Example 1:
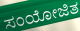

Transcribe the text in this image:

ಸಂಯೋಜಿತ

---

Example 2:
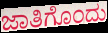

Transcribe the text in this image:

ಜಾತಿಗೊಂದು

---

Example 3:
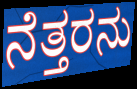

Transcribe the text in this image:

ನೆತ್ತರನು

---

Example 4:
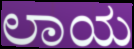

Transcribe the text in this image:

ಲಾಯ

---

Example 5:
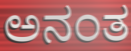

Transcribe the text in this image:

ಅನಂತ